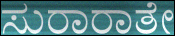
ಸುರಾರಾತೇ